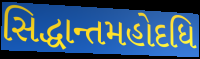
સિદ્ધાન્તમહોદધિ